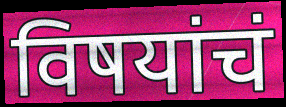
विषयांचं